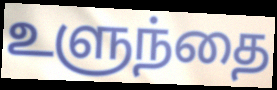
உளுந்தை